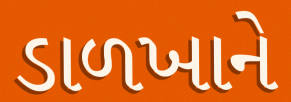
ડાળખાને